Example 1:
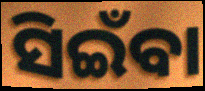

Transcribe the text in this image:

ସିଇଁବା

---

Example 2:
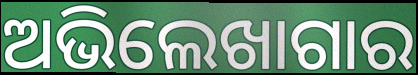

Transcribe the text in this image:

ଅଭିଲେଖାଗାର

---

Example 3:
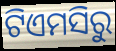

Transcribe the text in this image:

ଟିଏମସିରୁ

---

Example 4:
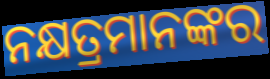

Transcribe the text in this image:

ନକ୍ଷତ୍ରମାନଙ୍କର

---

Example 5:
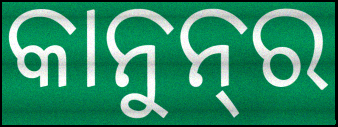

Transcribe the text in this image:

କାନୁନ୍‌ର